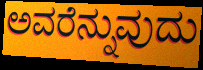
ಅವರೆನ್ನುವುದು